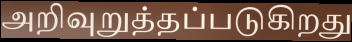
அறிவுறுத்தப்படுகிறது